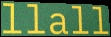
llall